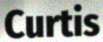
Curtis